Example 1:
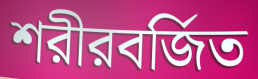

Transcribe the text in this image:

শরীরবর্জিত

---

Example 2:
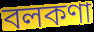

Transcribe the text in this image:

বলকণা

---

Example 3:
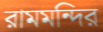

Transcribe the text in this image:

রামমন্দির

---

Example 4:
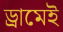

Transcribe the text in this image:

ড্রামেই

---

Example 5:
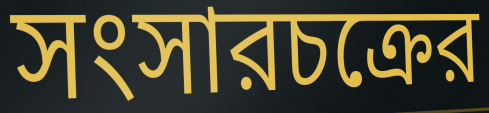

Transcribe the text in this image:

সংসারচক্রের